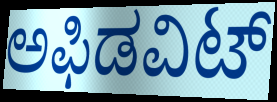
ಅಫಿಡವಿಟ್